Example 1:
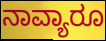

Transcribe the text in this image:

ನಾವ್ಯಾರೂ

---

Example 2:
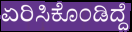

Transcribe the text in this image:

ಏರಿಸಿಕೊಂಡಿದ್ದೆ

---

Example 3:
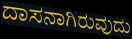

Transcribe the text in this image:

ದಾಸನಾಗಿರುವುದು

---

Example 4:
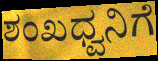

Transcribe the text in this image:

ಶಂಖಧ್ವನಿಗೆ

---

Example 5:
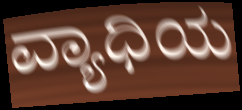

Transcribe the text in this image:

ವ್ಯಾಧಿಯ